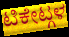
ಟಿಕೇಟ್ಗಳ